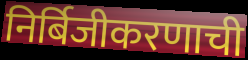
निर्बिजीकरणाची